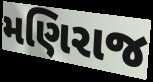
મણિરાજ